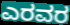
ಎರವರ